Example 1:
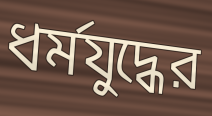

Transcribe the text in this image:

ধর্মযুদ্ধের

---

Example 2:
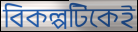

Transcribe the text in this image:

বিকল্পটিকেই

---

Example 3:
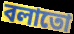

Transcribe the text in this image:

বলাতো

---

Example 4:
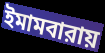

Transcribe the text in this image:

ইমামবারায়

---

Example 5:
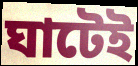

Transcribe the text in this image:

ঘাটেই